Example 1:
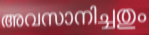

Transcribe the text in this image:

അവസാനിച്ചതും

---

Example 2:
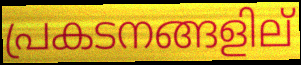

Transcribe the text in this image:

പ്രകടനങ്ങളില്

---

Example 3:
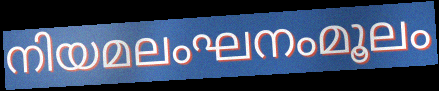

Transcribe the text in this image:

നിയമലംഘനംമൂലം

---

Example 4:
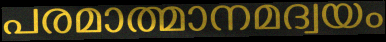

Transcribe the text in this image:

പരമാത്മാനമദ്വയം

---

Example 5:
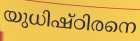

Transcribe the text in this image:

യുധിഷ്ഠിരനെ